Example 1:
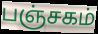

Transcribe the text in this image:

பஞ்சகம்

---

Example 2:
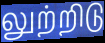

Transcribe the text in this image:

லுற்றிடு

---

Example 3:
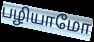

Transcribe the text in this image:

பழியாமோ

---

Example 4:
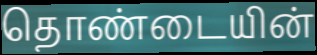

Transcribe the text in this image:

தொண்டையின்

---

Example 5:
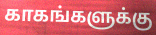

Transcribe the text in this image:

காகங்களுக்கு